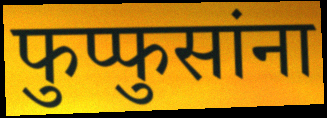
फुप्फुसांना